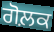
ਗੋਲ਼ਕ